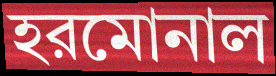
হরমোনাল